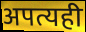
अपत्यही